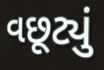
વછૂટ્યું